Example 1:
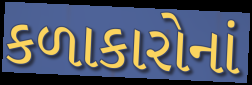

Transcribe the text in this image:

કળાકારોનાં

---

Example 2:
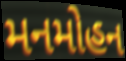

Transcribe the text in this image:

મનમોહન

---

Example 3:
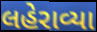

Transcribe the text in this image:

લહેરાવ્યા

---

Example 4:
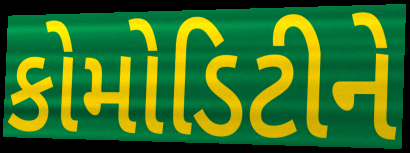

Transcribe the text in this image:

કોમોડિટીને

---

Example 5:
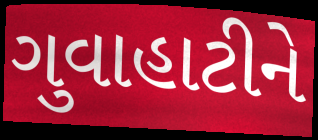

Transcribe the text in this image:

ગુવાહાટીને